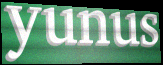
yunus